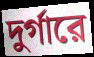
দুর্গারে